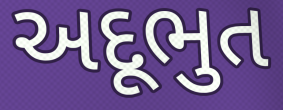
અદૂભુત